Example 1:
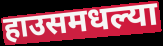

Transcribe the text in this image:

हाउसमधल्या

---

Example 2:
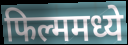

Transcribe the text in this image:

फिल्ममध्ये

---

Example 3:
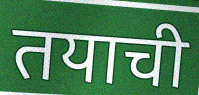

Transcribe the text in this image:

तयाची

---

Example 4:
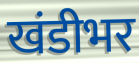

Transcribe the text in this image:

खंडीभर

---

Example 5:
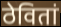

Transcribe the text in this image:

ठेवितां